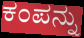
ಕಂಪನ್ನು